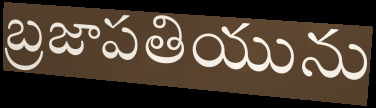
బ్రజాపతియును